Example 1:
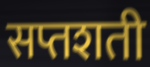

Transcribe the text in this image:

सप्तशती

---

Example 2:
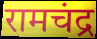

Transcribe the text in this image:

रामचंद्र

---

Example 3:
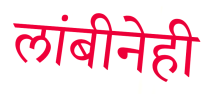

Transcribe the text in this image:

लांबीनेही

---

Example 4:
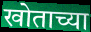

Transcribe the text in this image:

खोताच्या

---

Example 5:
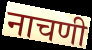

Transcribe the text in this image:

नाचणी